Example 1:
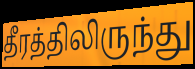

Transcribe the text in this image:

தீரத்திலிருந்து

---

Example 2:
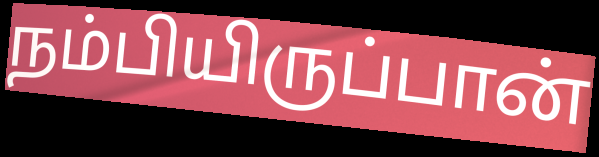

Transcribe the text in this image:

நம்பியிருப்பான்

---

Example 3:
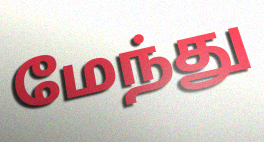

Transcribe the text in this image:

மேந்து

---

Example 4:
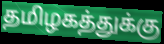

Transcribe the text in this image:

தமிழகத்துக்கு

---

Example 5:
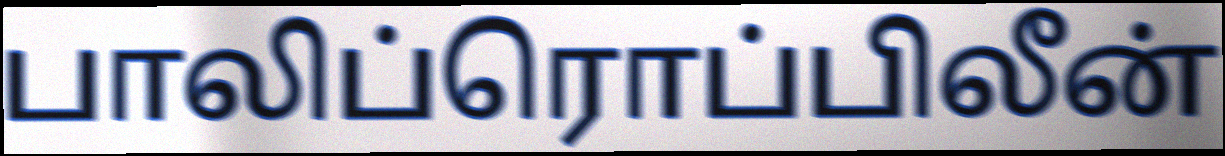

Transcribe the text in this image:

பாலிப்ரொப்பிலீன்